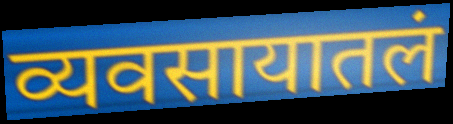
व्यवसायातलं